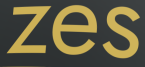
zes